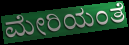
ಮೇರಿಯಂತೆ